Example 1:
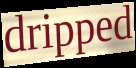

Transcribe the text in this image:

dripped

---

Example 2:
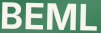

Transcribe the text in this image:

BEML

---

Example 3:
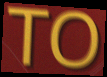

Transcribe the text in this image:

TO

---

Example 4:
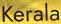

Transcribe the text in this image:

Kerala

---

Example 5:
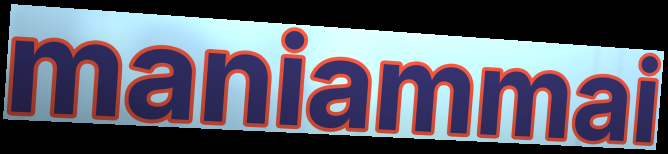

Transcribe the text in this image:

maniammai